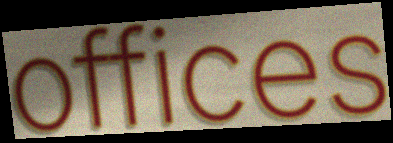
offices